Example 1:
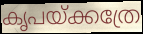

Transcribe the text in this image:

കൃപയ്ക്കത്രേ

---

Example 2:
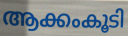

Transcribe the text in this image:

ആക്കംകൂടി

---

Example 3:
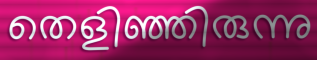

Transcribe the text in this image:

തെളിഞ്ഞിരുന്നു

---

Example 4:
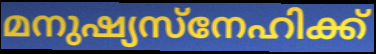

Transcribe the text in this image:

മനുഷ്യസ്നേഹിക്ക്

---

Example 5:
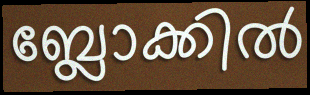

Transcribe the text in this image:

ബ്ലോക്കിൽ